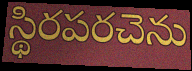
స్థిరపరచెను